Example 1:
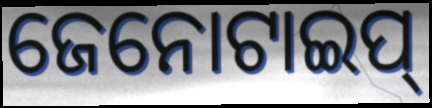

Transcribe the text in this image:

ଜେନୋଟାଇପ୍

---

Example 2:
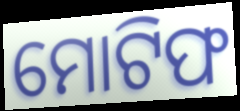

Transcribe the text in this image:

ମୋଟିଫ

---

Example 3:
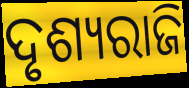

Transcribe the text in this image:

ଦୃଶ୍ୟରାଜି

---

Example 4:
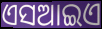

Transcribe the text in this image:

ଏସଆଇଏ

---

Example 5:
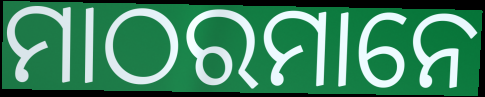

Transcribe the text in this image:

ମାଠରମାନେ